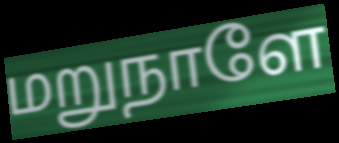
மறுநாளே